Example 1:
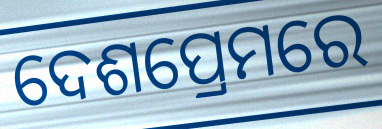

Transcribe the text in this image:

ଦେଶପ୍ରେମରେ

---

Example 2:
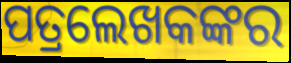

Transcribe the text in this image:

ପତ୍ରଲେଖକଙ୍କର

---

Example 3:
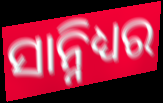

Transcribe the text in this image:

ସାନ୍ନିଧ୍ୟର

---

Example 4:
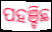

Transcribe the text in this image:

ପହଞ୍ଚିଛ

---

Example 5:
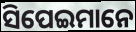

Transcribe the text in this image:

ସିପେଇମାନେ